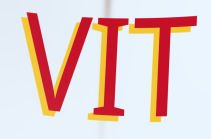
VIT